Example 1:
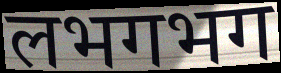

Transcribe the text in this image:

लभगभग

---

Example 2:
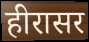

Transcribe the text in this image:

हीरासर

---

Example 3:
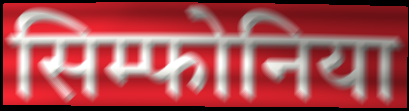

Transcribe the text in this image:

सिम्फोनिया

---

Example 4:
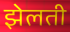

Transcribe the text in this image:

झेलती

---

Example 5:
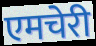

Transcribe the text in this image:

एमचेरी